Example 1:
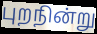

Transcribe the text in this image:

புறநின்று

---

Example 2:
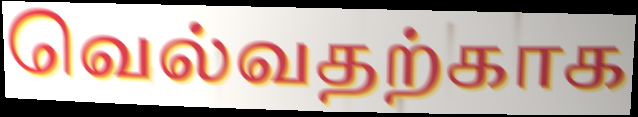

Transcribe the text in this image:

வெல்வதற்காக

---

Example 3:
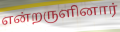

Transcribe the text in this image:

என்றருளினார்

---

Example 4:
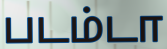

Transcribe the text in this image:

படம்டா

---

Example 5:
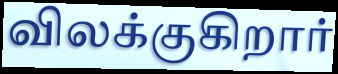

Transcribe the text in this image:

விலக்குகிறார்